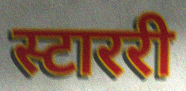
स्टाररी